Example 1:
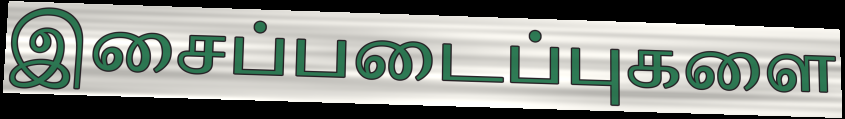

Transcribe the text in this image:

இசைப்படைப்புகளை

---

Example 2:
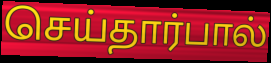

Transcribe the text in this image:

செய்தார்பால்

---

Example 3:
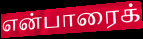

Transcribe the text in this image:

என்பாரைக்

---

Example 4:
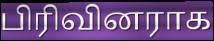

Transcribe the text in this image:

பிரிவினராக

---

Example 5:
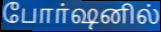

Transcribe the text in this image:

போர்ஷனில்